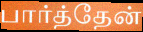
பார்த்தேன்